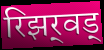
रिझर्वड्